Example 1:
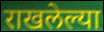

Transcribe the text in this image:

राखलेल्या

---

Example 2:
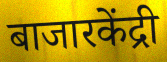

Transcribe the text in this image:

बाजारकेंद्री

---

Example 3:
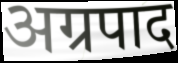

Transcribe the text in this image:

अग्रपाद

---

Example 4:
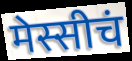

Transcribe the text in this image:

मेस्सीचं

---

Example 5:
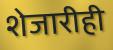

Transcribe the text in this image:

शेजारीही